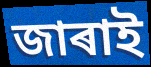
জাৰাই